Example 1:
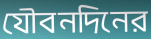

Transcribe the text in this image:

যৌবনদিনের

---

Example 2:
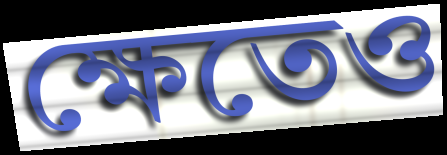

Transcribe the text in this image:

ক্ষেতেও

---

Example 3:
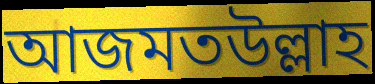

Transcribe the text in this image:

আজমতউল্লাহ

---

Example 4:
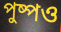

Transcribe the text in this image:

পুষ্পও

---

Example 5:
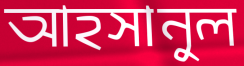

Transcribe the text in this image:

আহসানুল